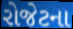
રોજેટના